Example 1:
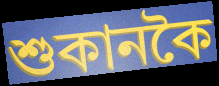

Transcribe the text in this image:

শুকানকৈ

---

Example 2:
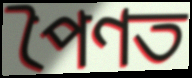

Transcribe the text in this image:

পৈণত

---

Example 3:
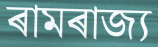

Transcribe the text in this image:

ৰামৰাজ্য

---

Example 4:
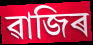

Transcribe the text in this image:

ৱাজিৰ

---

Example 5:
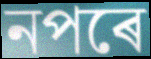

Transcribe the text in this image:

নপৰে